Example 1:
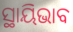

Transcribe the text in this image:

ସ୍ଥାୟିଭାବ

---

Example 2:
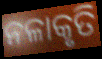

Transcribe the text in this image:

ନଳାକୃତି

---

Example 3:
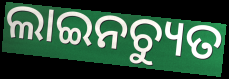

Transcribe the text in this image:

ଲାଇନଚ୍ୟୁତ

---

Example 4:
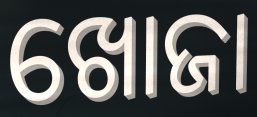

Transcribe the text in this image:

ଖୋଜା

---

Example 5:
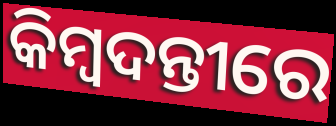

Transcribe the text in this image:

କିମ୍ବଦନ୍ତୀରେ